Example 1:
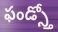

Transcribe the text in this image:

ఫండ్స్తో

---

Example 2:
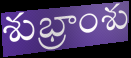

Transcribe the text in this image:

శుభ్రాంశు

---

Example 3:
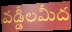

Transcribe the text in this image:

వడ్డీలమీద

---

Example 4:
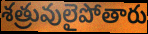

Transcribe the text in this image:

శత్రువులైపోతారు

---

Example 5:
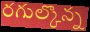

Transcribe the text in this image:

రగుల్కొన్న